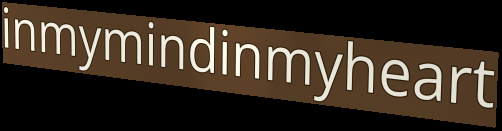
inmymindinmyheart